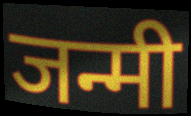
जन्मी